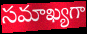
సమాఖ్యగా